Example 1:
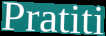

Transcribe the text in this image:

Pratiti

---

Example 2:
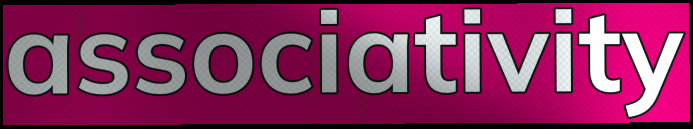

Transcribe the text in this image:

associativity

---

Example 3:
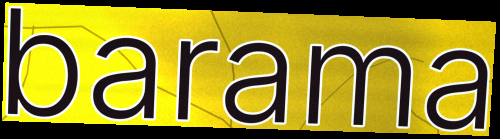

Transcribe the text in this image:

barama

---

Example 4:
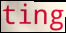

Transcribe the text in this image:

ting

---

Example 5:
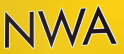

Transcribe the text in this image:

NWA